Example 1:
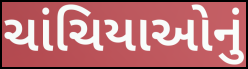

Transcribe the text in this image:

ચાંચિયાઓનું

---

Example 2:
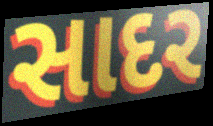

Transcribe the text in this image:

સાદર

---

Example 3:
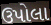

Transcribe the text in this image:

ઉપોલા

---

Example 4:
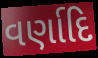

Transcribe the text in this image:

વર્ણાદિ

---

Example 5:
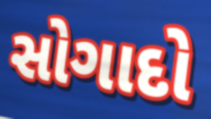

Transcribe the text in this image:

સોગાદો